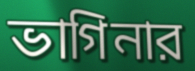
ভাগিনার